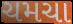
ચમચા